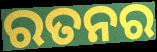
ରତନର